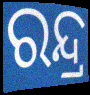
ରନ୍ଦ୍ର